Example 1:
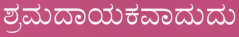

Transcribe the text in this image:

ಶ್ರಮದಾಯಕವಾದುದು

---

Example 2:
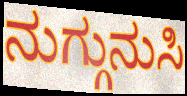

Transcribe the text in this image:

ನುಗ್ಗುನುಸಿ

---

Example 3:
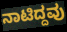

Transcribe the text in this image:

ನಾಟಿದ್ದವು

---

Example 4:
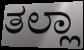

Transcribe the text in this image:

ತಲ್ಲಾ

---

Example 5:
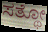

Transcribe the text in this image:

ಸತ್ಥೋ